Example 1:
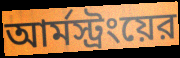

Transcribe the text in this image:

আর্মস্ট্রংয়ের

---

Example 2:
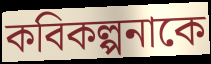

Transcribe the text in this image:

কবিকল্পনাকে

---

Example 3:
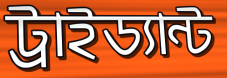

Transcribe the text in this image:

ট্রাইড্যান্ট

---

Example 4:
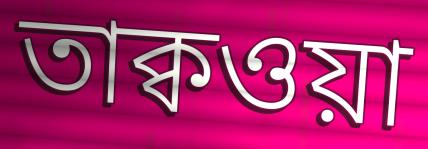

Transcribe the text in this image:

তাক্বওয়া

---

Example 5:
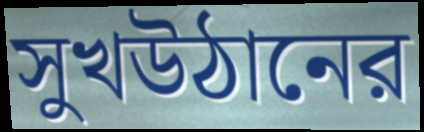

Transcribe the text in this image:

সুখউঠানের